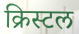
क्रिस्टल